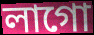
লাগো